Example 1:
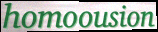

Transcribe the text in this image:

homoousion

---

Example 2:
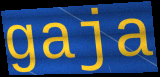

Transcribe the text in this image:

gaja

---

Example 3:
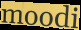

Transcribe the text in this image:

moodi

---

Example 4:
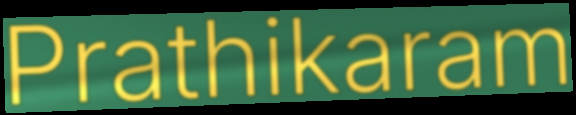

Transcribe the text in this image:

Prathikaram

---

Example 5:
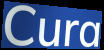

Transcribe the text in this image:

Cura